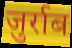
जुर्राब